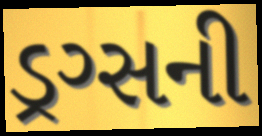
ડ્રગ્સની